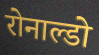
रोनाल्डो